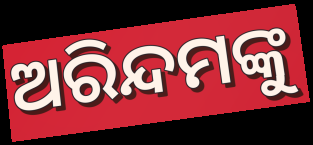
ଅରିନ୍ଦମଙ୍କୁ